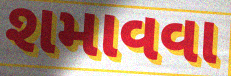
શમાવવા